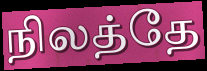
நிலத்தே